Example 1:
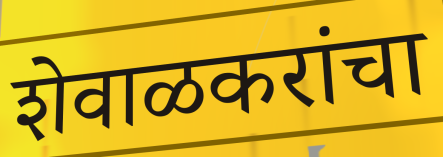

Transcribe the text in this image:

शेवाळकरांचा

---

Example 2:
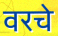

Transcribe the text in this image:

वरचे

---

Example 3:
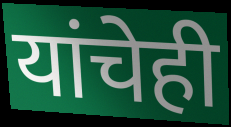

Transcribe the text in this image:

यांचेही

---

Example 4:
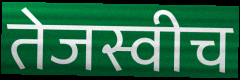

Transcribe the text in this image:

तेजस्वीच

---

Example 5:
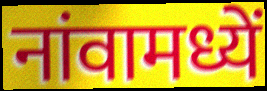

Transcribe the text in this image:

नांवामध्यें